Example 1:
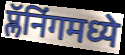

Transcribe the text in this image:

प्लॅनिंगमध्ये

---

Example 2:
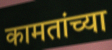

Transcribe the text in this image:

कामतांच्या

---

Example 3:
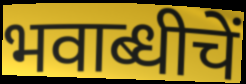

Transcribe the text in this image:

भवाब्धीचें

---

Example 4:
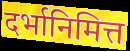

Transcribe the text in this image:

दर्भानिमित्त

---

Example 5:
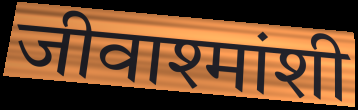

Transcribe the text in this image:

जीवाश्मांशी